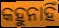
କହୁନାହିଁ